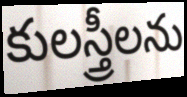
కులస్త్రీలను